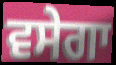
ਵਸੇਗਾ